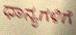
ಧಾನ್ಯಗಳಿಗೆ